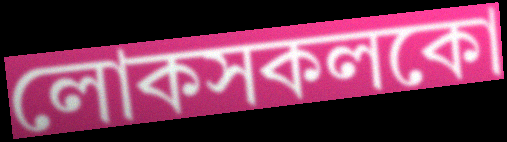
লোকসকলকো